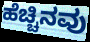
ಹೆಚ್ಚಿನವು